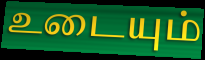
உடையும்